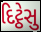
દિટ્ઠેસુ